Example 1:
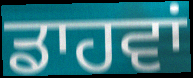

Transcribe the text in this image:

ਡਾਹਵਾਂ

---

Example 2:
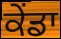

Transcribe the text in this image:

ਕੇਂਡਾ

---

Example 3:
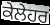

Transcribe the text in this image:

ਕੇਲੇਹਰ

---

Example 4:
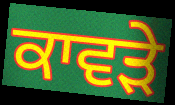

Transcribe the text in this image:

ਕਾਵੜੇ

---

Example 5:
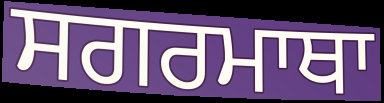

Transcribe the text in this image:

ਸਗਰਮਾਥਾ